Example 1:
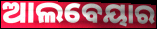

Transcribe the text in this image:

ଆଲବେୟାର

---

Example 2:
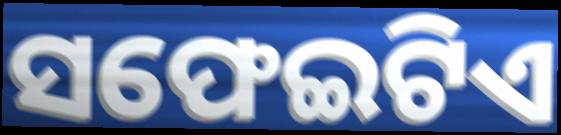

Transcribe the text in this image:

ସଫେଇଟିଏ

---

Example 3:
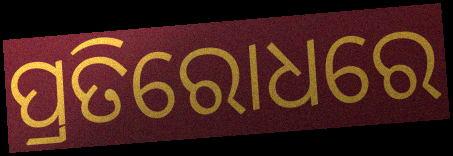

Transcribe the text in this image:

ପ୍ରତିରୋଧରେ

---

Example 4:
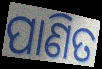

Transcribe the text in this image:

ପାଣିତ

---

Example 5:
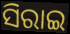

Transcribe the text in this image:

ସିରାଇ